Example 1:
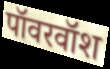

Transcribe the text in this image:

पॉवरवॉश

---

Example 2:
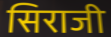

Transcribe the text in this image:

सिराजी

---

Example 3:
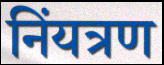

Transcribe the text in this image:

निंयत्रण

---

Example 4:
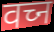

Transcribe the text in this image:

वच्न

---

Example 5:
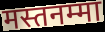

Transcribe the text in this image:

मस्तनम्मा